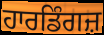
ਹਾਰਡਿੰਗਜ਼